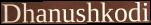
Dhanushkodi